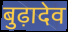
बुढ़ादेव